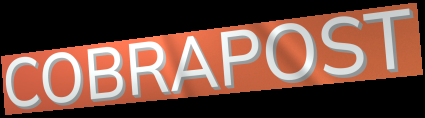
COBRAPOST